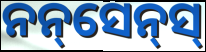
ନନ୍‌ସେନ୍‌ସ୍